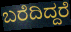
ಬರೆದಿದ್ದರೆ